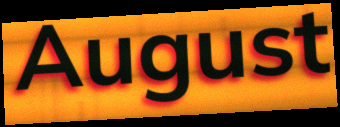
August